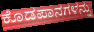
ಕೊಡಪಾನಗಳನ್ನು